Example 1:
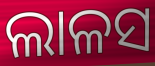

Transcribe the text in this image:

ଲାଳସ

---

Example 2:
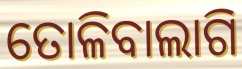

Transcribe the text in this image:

ତୋଳିବାଲାଗି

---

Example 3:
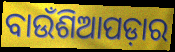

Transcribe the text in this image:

ବାଉଁଶିଆପଡ଼ାର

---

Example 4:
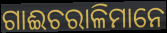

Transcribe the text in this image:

ଗାଈଚରାଳିମାନେ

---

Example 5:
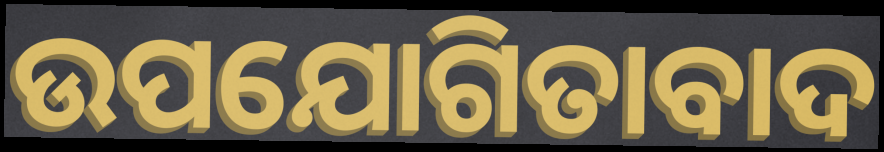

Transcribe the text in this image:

ଉପଯୋଗିତାବାଦ